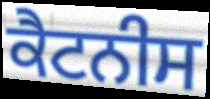
ਕੈਟਨੀਸ